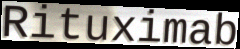
Rituximab